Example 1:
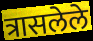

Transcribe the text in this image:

त्रासलेले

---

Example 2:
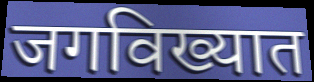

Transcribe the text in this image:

जगविख्यात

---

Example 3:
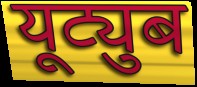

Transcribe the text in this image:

यूट्युब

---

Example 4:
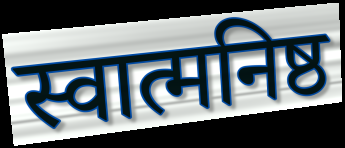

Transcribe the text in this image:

स्वात्मनिष्ठ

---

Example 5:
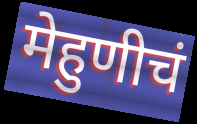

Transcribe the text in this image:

मेहुणीचं